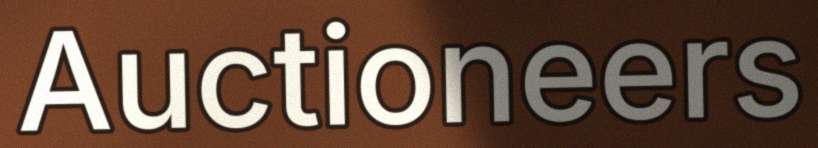
Auctioneers